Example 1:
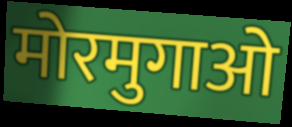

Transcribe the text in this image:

मोरमुगाओ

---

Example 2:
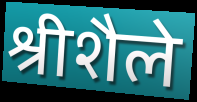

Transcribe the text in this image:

श्रीशैले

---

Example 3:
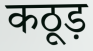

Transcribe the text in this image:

कठूड़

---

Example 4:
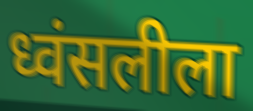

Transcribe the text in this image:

ध्वंसलीला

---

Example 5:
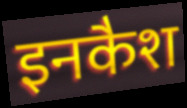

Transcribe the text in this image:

इनकैश